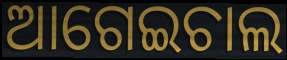
ଆଗେଇଚାଲ